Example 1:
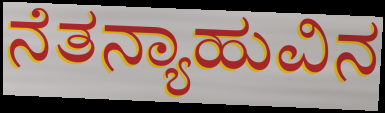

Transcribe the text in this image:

ನೆತನ್ಯಾಹುವಿನ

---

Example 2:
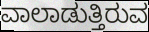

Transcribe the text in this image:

ವಾಲಾಡುತ್ತಿರುವ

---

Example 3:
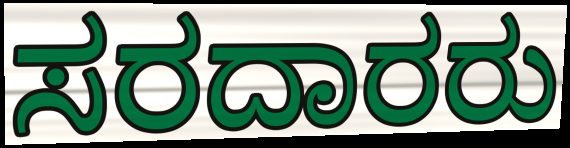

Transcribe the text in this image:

ಸರದಾರರು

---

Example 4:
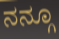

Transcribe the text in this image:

ನನ್ಗೂ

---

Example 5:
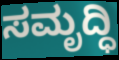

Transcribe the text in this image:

ಸಮೃದ್ಧಿ